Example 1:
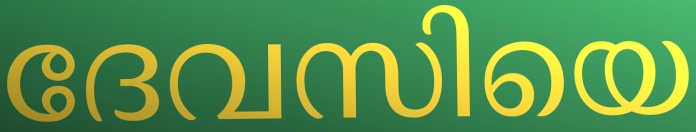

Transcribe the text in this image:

ദേവസിയെ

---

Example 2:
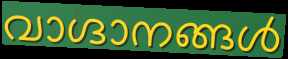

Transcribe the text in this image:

വാഗ്ദാനങ്ങൾ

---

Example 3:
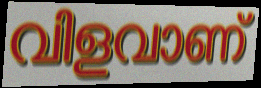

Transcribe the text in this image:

വിളവാണ്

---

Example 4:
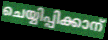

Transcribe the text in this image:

ചെയ്യിപ്പിക്കാന്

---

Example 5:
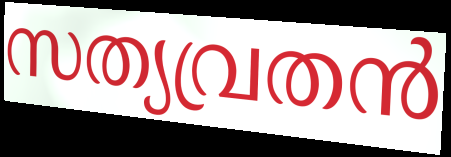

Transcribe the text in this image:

സത്യവ്രതൻ